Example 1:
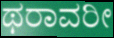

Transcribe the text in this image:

ಥರಾವರೀ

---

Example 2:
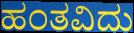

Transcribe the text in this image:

ಹಂತವಿದು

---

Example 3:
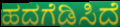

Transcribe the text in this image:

ಹದಗೆಡಿಸಿದೆ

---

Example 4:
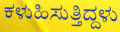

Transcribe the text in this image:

ಕಳುಹಿಸುತ್ತಿದ್ದಳು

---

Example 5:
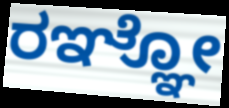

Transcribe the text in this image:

ರಞ್ಞೋ